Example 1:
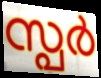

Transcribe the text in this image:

സ്പർ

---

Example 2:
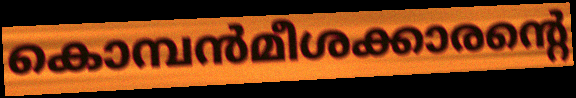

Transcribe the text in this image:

കൊമ്പൻമീശക്കാരന്റെ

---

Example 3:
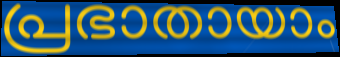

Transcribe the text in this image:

പ്രഭാതായാം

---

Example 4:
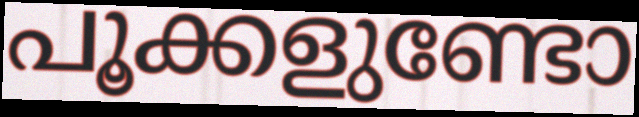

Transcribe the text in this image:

പൂക്കളുണ്ടോ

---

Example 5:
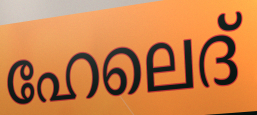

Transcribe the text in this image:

ഹേലെദ്